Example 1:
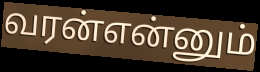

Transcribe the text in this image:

வரன்என்னும்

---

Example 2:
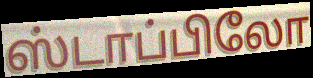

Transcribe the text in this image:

ஸ்டாப்பிலோ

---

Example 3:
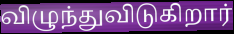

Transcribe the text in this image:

விழுந்துவிடுகிறார்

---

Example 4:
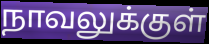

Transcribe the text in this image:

நாவலுக்குள்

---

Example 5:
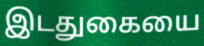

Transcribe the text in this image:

இடதுகையை